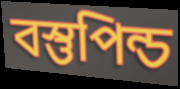
বস্তুপিন্ড